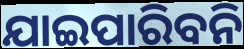
ଯାଇପାରିବନି